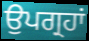
ਉਪਗ੍ਰਹਾਂ